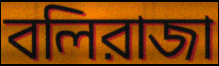
বলিরাজা